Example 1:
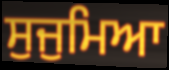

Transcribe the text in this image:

ਸੁਜੁਮਿਆ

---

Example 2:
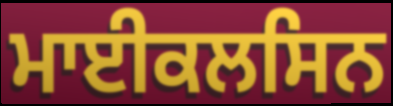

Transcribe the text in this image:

ਮਾਈਕਲਸਿਨ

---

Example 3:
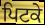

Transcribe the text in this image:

ਪਿਟਕੇ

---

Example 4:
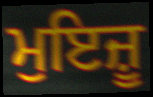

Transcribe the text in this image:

ਮੁਇਜ਼ੂ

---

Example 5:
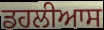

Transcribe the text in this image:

ਡਹਲੀਆਸ